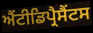
ਐਂਟੀਡਿਪ੍ਰੈਸੈਂਟਸ